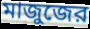
মাজুজের